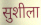
सुशीला